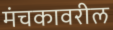
मंचकावरील